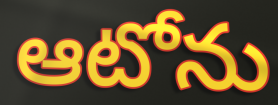
ఆటోను